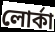
লোর্কা